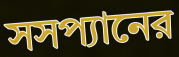
সসপ্যানের